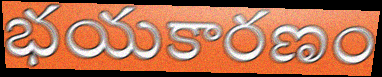
భయకారణం